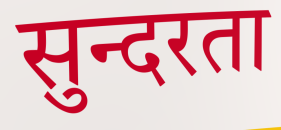
सुन्दरता